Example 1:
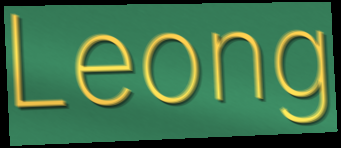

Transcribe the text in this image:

Leong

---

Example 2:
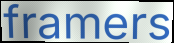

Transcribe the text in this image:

framers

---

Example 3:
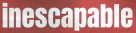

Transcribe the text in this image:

inescapable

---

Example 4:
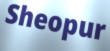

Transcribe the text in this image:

Sheopur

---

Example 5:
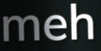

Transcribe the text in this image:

meh